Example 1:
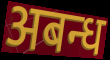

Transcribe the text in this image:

अबन्ध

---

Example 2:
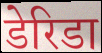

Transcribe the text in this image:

डेरिडा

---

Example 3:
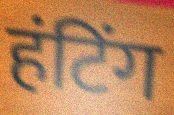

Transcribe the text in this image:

हंटिंग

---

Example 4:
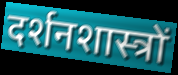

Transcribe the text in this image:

दर्शनशास्त्रों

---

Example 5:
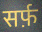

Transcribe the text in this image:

सर्फ़